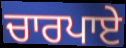
ਚਾਰਪਾਏ